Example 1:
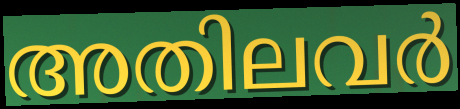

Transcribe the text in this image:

അതിലവർ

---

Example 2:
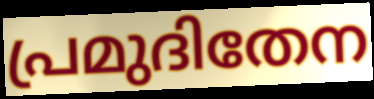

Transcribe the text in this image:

പ്രമുദിതേന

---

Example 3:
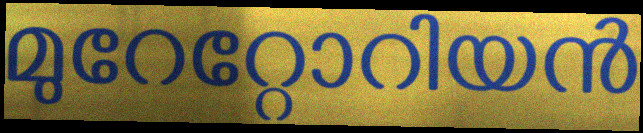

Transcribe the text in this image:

മുറേറ്റോറിയൻ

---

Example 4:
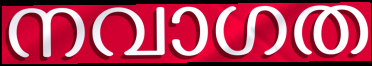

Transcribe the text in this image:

നവാഗത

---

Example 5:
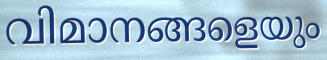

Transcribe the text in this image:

വിമാനങ്ങളെയും